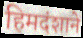
हिमदंशाने